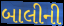
બાલીની